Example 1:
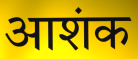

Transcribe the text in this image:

आशंक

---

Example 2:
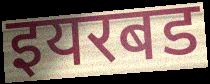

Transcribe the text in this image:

इयरबड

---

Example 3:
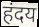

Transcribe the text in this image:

हंदय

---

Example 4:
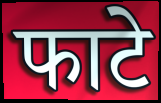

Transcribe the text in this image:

फाटे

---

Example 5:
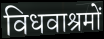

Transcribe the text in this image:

विधवाश्रमों